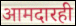
आमदारही